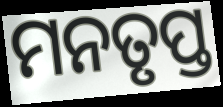
ମନତୃପ୍ତ